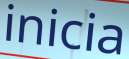
inicia